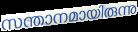
സന്താനമായിരുന്നു